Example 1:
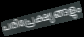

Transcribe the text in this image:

പരിപ്രേക്ഷ്യങ്ങളും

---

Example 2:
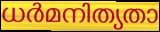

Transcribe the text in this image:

ധർമനിത്യതാ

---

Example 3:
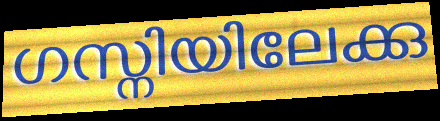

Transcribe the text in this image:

ഗസ്നിയിലേക്കു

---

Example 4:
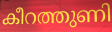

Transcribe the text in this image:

കീറത്തുണി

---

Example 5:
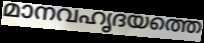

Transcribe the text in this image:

മാനവഹൃദയത്തെ